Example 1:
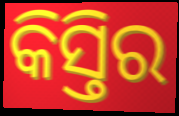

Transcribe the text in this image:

କିସ୍ତିର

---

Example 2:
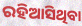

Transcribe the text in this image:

ରହିଆସିଥିବା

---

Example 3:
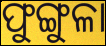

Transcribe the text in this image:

ଫୁଙ୍ଗୁଳା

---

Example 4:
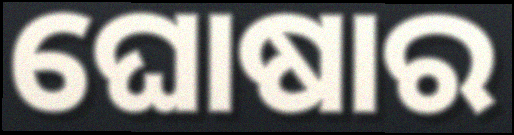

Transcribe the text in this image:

ଘୋଷାର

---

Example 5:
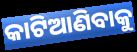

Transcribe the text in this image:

କାଟିଆଣିବାକୁ